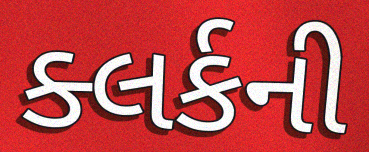
ક્લર્કની